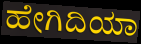
ಹೇಗಿದಿಯಾ